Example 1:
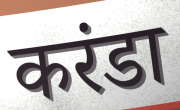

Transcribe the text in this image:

करंडा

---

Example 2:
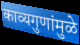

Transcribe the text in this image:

काव्यगुणांमुळे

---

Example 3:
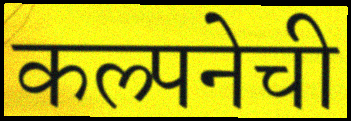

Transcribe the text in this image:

कल्पनेची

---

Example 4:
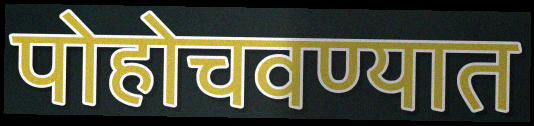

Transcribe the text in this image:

पोहोचवण्यात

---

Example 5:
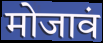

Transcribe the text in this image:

मोजावं